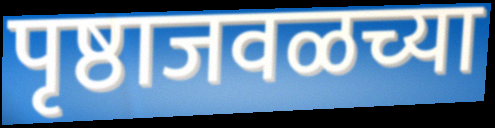
पृष्ठाजवळच्या